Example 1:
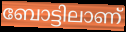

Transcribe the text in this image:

ബോട്ടിലാണ്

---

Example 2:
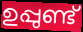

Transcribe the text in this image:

ഉപ്പുണ്ട്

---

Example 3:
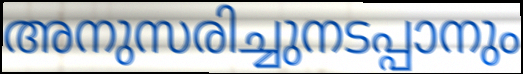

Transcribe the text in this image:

അനുസരിച്ചുനടപ്പാനും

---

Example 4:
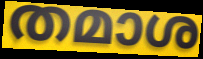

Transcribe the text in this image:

തമാശ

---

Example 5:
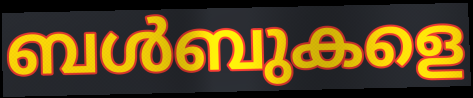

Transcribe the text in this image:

ബൾബുകളെ